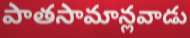
పాతసామాన్లవాడు